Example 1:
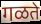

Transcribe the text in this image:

गळते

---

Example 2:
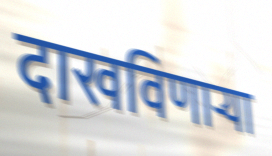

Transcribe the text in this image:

दाखविणाऱ्या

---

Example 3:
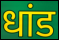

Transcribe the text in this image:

धांड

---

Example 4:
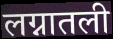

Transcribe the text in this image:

लग्नातली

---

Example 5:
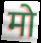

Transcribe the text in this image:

मो